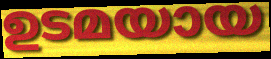
ഉടമയായ